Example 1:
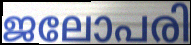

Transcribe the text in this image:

ജലോപരി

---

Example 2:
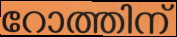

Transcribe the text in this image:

റോത്തിന്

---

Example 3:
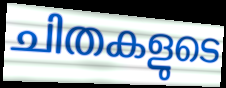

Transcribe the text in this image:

ചിതകളുടെ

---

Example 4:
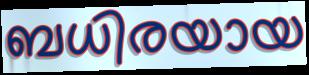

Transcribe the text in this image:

ബധിരയായ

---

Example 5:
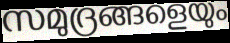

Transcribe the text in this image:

സമുദ്രങ്ങളെയും